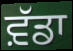
ਵ਼ੱਡਾ